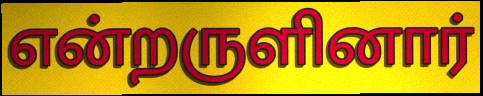
என்றருளினார்